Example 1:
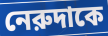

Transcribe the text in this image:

নেরুদাকে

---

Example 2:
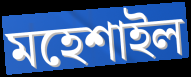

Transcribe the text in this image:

মহেশাইল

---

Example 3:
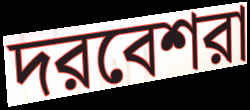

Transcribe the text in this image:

দরবেশরা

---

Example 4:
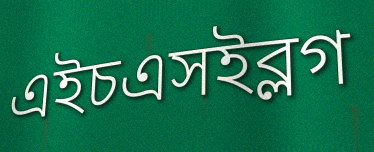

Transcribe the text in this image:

এইচএসইব্লগ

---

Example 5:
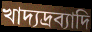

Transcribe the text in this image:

খাদ্যদ্রব্যাদি